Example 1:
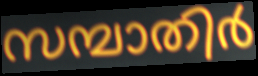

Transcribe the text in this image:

സമ്പാതിർ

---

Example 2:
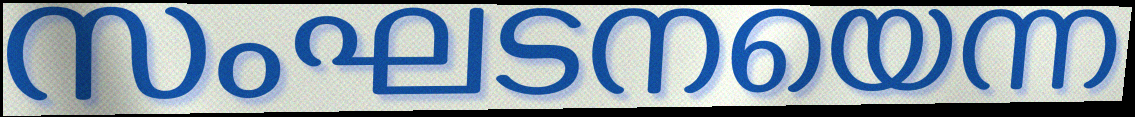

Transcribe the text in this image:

സംഘടനയെന്ന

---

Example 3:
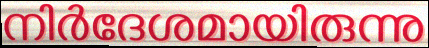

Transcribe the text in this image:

നിർദേശമായിരുന്നു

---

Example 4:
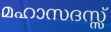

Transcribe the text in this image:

മഹാസദസ്സ്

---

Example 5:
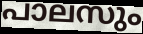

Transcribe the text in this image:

പാലസും